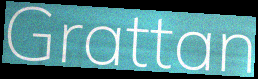
Grattan